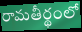
రామతీర్థంలో